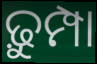
ଢ଼ୁମ୍ପା